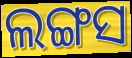
ଲଙ୍ଗସ